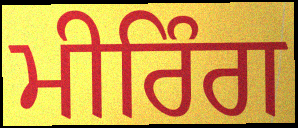
ਮੀਰਿੰਗ